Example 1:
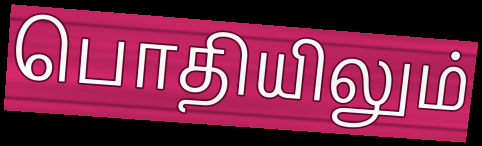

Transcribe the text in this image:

பொதியிலும்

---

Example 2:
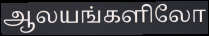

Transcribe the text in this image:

ஆலயங்களிலோ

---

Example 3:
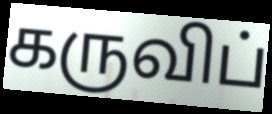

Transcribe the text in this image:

கருவிப்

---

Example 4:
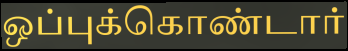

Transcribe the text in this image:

ஒப்புக்கொண்டார்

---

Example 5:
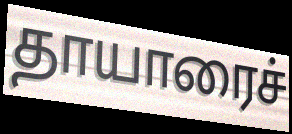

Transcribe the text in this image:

தாயாரைச்